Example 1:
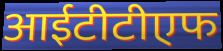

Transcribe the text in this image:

आईटीटीएफ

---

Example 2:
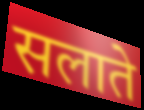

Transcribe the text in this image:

सलाते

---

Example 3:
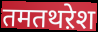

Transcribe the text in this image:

तमतथऱेश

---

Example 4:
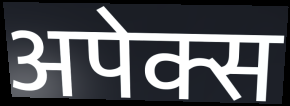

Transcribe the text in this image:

अपेक्स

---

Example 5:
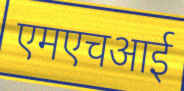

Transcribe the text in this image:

एमएचआई